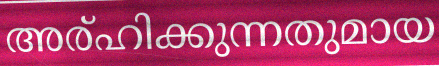
അര്ഹിക്കുന്നതുമായ